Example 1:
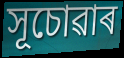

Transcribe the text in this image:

সূচোৱাৰ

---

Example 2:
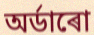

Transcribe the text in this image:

অৰ্ডাৰো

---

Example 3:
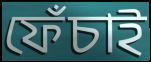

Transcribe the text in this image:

ফেঁচাই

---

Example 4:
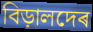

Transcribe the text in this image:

বিড়ালদেৰ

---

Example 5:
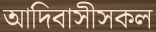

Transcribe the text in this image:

আদিবাসীসকল